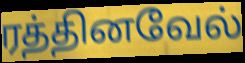
ரத்தினவேல்